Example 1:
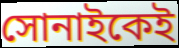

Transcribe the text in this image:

সোনাইকেই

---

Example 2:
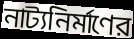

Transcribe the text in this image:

নাট্যনির্মাণের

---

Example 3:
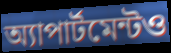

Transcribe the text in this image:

অ্যাপার্টমেন্টও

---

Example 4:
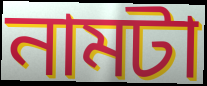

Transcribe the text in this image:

নামটা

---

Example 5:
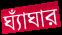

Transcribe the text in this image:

ঘ্যাঁঘার